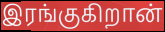
இரங்குகிறான்